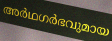
അർഥഗർഭവുമായ